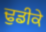
ਢੁਡੀਕੇ